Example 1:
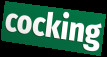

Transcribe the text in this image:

cocking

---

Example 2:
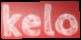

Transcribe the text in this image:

kelo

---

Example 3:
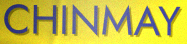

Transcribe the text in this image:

CHINMAY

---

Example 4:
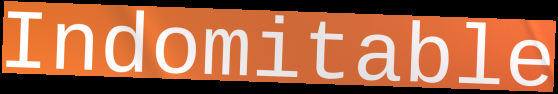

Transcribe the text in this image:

Indomitable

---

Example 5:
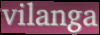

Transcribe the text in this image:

vilanga